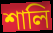
শালি